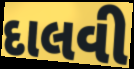
દાલવી